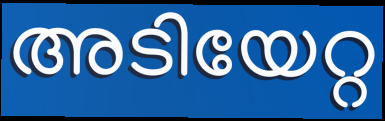
അടിയേറ്റ